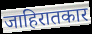
जाहिरातकार